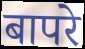
बापरे